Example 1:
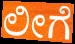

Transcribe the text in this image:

ಲೀಗೆ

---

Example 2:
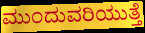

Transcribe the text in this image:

ಮುಂದುವರಿಯುತ್ತೆ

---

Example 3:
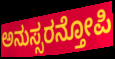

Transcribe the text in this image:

ಅನುಸ್ಸರನ್ತೋಪಿ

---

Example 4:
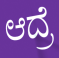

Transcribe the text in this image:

ಆದ್ರೆ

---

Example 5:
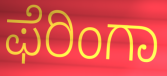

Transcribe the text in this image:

ಫೆರಿಂಗಾ